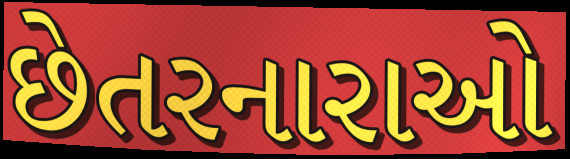
છેતરનારાઓ